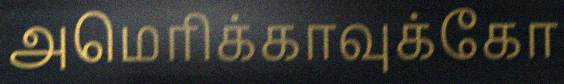
அமெரிக்காவுக்கோ